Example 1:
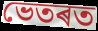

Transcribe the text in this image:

ভেতৰত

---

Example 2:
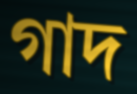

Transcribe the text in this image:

গাদ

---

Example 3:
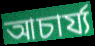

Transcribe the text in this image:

আচাৰ্য্য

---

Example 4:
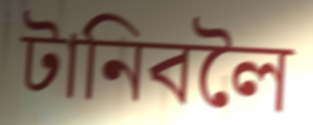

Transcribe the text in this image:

টানিবলৈ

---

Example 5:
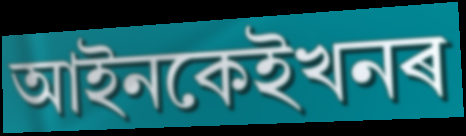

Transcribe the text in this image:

আইনকেইখনৰ